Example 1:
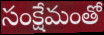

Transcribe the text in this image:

సంక్షేమంతో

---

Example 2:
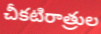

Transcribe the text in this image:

చీకటిరాత్రుల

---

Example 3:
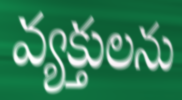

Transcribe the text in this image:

వ్యక్తులను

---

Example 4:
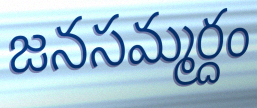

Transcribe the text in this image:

జనసమ్మర్దం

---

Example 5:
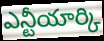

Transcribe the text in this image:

ఎన్టీయార్కి